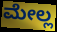
ಮೇಲ್ಲ